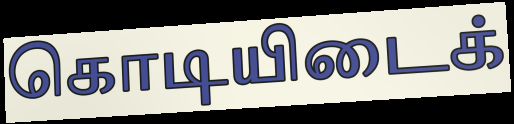
கொடியிடைக்